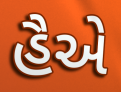
હૈએ